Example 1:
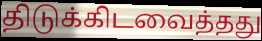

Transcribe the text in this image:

திடுக்கிடவைத்தது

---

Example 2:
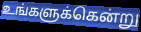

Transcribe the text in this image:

உங்களுக்கென்று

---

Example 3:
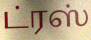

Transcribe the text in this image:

ட்ரஸ்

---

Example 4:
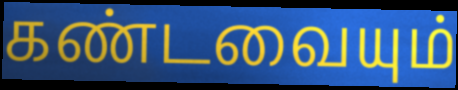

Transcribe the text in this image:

கண்டவையும்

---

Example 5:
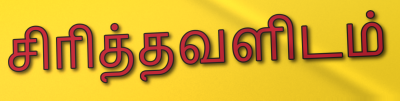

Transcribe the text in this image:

சிரித்தவளிடம்